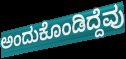
ಅಂದುಕೊಂಡಿದ್ದೆವು